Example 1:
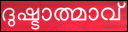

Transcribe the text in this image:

ദുഷ്ടാത്മാവ്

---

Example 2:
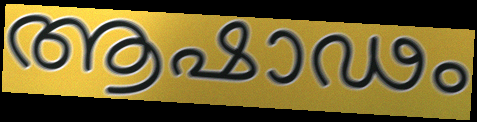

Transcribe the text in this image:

ആഷാഢം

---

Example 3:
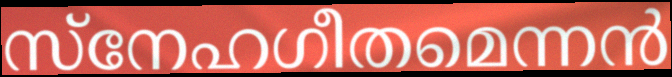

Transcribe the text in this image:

സ്നേഹഗീതമെന്നൻ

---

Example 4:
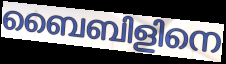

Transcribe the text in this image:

ബൈബിളിനെ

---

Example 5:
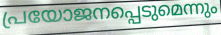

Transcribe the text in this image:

പ്രയോജനപ്പെടുമെന്നും